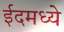
ईदमध्ये